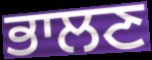
ਭਾਲਣ